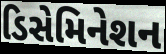
ડિસેમિનેશન